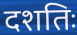
दशतिः